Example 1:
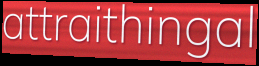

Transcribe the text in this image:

attraithingal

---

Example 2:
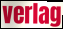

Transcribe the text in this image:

verlag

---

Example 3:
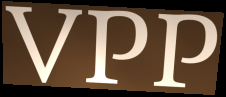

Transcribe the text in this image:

VPP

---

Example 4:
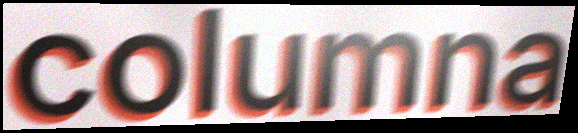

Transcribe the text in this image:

columna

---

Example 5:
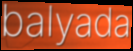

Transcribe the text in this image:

balyada